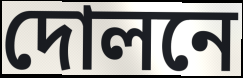
দোলনে